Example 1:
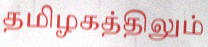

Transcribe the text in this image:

தமிழகத்திலும்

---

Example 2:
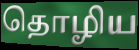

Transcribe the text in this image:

தொழிய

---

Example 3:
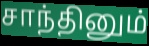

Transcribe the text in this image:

சாந்தினும்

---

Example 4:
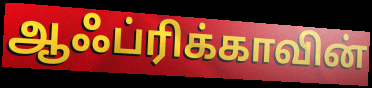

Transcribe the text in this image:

ஆஃப்ரிக்காவின்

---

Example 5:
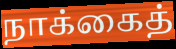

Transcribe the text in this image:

நாக்கைத்